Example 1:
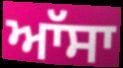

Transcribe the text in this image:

ਆੱਸਾ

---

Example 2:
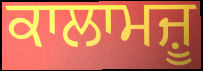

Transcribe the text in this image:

ਕਾਲਾਮਜ਼ੂ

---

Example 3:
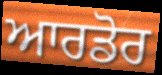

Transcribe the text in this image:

ਆਰਡੋਰ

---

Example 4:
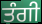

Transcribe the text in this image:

ਤੰਗੀ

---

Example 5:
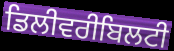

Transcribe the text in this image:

ਡਿਲੀਵਰੀਬਿਲਟੀ